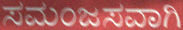
ಸಮಂಜಸವಾಗಿ